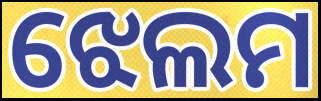
ଝେଲମ